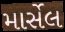
માર્સેલ